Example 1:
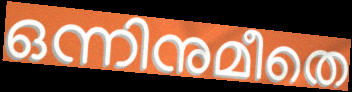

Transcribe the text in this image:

ഒന്നിനുമീതെ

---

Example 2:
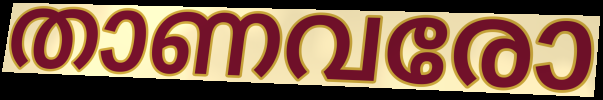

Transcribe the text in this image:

താണവരോ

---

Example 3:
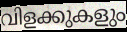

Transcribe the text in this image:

വിളക്കുകളും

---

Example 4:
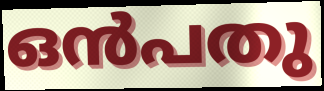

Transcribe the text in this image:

ഒൻപതു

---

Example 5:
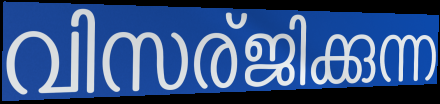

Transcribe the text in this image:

വിസര്ജിക്കുന്ന